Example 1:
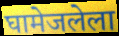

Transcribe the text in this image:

घामेजलेला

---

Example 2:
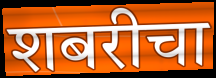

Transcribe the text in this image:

शबरीचा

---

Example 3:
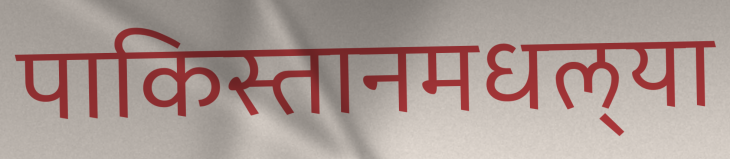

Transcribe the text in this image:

पाकिस्तानमधल्या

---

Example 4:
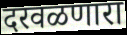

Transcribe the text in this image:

दरवळणारा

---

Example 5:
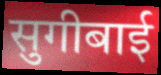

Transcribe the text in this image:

सुगीबाई